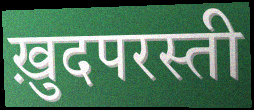
ख़ुदपरस्ती